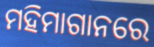
ମହିମାଗାନରେ